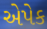
એપેક